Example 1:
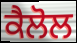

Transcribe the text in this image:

ਕੈਲੋਲ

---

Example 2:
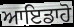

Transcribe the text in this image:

ਆਇਡਾਹੋ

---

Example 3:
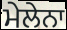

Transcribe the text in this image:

ਮੇਲੇਨਾ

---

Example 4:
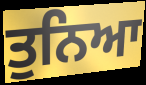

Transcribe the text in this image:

ਤੁਨਿਆ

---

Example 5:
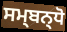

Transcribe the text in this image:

ਸਮ੍ਬਨ੍ਧੋ